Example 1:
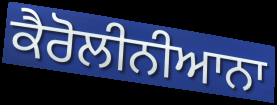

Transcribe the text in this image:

ਕੈਰੋਲੀਨੀਆਨਾ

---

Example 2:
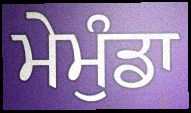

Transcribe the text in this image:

ਮੇਮੁੰਡਾ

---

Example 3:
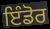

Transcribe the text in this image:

ਇੰਡੋਰ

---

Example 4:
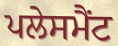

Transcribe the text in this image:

ਪਲੇਸਮੈਂਟ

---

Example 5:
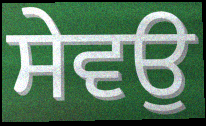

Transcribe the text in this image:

ਸੇਵਉ